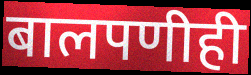
बालपणीही